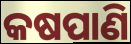
କଷପାଣି